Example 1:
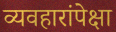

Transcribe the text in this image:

व्यवहारांपेक्षा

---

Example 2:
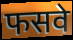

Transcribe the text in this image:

फसवे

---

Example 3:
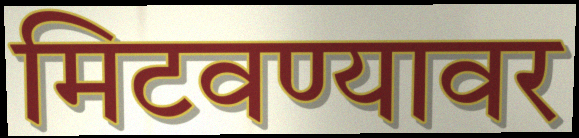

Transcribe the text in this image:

मिटवण्यावर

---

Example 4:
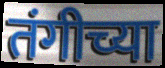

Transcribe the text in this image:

तंगीच्या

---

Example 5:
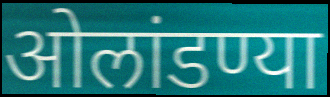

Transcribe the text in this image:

ओलांडण्या